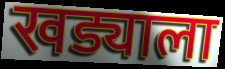
खड्याला